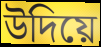
উদিয়ে